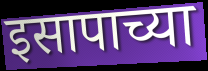
इसापाच्या